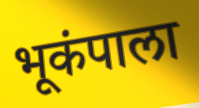
भूकंपाला